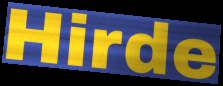
Hirde